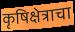
कृषिक्षेत्राचा